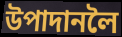
উপাদানলৈ